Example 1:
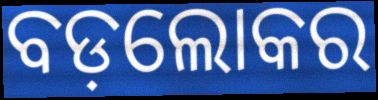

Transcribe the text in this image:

ବଡ଼ଲୋକର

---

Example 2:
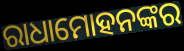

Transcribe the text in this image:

ରାଧାମୋହନଙ୍କର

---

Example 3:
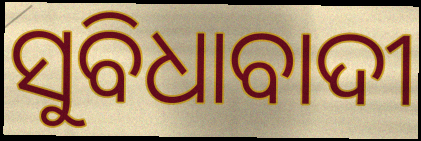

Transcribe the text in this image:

ସୁବିଧାବାଦୀ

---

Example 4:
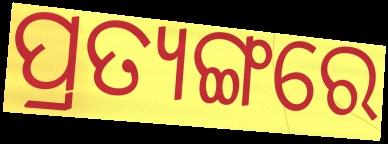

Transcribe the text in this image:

ପ୍ରତ୍ୟଙ୍ଗରେ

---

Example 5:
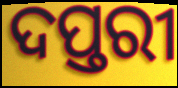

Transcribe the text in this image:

ଦପ୍ତରୀ